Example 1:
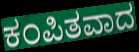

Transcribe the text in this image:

ಕಂಪಿತವಾದ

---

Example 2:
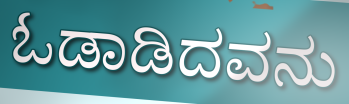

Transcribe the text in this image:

ಓಡಾಡಿದವನು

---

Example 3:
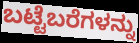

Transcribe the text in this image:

ಬಟ್ಟೆಬರೆಗಳನ್ನು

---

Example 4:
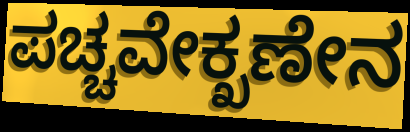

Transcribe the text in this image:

ಪಚ್ಚವೇಕ್ಖಣೇನ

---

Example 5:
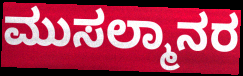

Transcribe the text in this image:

ಮುಸಲ್ಮಾನರ